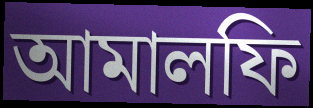
আমালফি